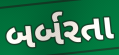
બર્બરતા